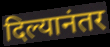
दिल्यानंतर